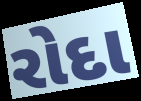
રોદા